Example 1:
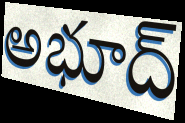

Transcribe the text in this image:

అభూద్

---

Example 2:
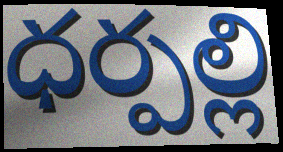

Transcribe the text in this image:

ధర్పల్లి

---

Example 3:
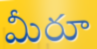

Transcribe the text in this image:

మీరూ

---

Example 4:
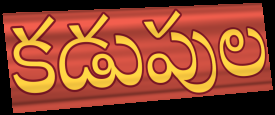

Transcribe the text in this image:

కడుపుల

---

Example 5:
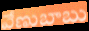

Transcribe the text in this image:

వేణుబాబు